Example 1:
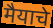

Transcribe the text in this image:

मैयाचे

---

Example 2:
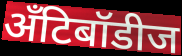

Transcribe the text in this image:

अँटिबॉडीज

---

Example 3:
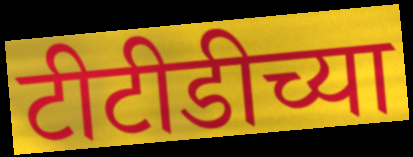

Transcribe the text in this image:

टीटीडीच्या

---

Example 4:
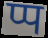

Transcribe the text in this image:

प्प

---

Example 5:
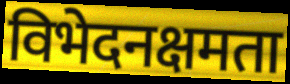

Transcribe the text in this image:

विभेदनक्षमता